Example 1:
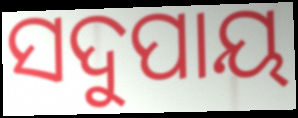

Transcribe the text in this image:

ସଦୁପାୟ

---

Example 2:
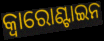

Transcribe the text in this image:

କ୍ୱାରୋଣ୍ଟାଇନ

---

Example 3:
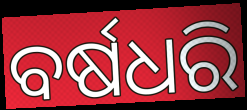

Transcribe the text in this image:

ବର୍ଷଧରି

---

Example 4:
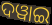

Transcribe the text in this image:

ଦୱାଇ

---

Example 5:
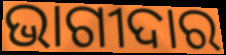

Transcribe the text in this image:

ଭାଗୀଦାର